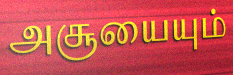
அசூயையும்